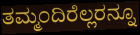
ತಮ್ಮಂದಿರೆಲ್ಲರನ್ನೂ